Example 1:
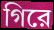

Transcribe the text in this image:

গিরে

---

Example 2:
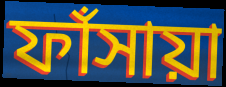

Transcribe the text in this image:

ফাঁসায়া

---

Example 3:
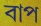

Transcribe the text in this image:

বাপ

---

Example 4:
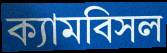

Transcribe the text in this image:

ক্যামবিসল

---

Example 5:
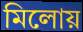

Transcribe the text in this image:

মিলোয়